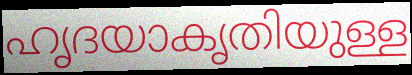
ഹൃദയാകൃതിയുള്ള